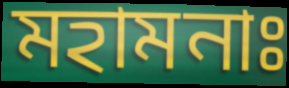
মহামনাঃ